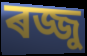
ৰজ্জু